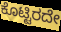
ಕೊಟ್ಟಿರದೇ